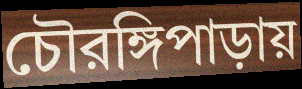
চৌরঙ্গিপাড়ায়